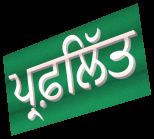
ਪ੍ਰਫ਼ਲਿੱਤ